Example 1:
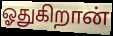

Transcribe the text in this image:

ஓதுகிறான்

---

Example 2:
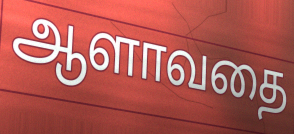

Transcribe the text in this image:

ஆளாவதை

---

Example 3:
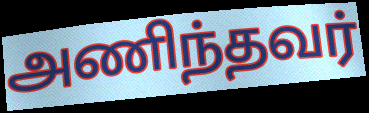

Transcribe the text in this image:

அணிந்தவர்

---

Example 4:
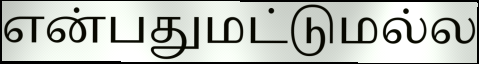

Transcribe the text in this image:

என்பதுமட்டுமல்ல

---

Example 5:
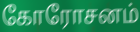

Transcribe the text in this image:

கோரோசனம்